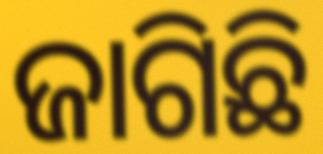
ଜାଗିଛି